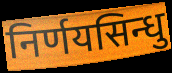
निर्णयसिन्धु